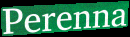
Perenna